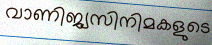
വാണിജ്യസിനിമകളുടെ